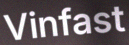
Vinfast